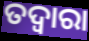
ତଦ୍ବାରା